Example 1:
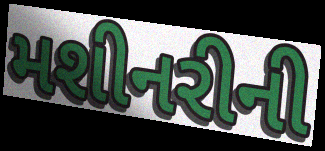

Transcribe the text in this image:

મશીનરીની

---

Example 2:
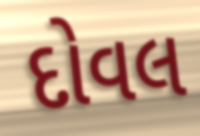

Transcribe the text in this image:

દોવલ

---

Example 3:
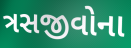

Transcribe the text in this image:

ત્રસજીવોના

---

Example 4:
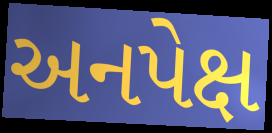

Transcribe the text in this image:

અનપેક્ષ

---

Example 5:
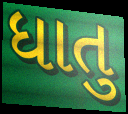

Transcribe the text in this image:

ધાતુ